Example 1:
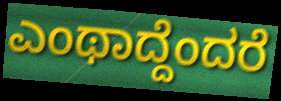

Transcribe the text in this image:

ಎಂಥಾದ್ದೆಂದರೆ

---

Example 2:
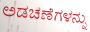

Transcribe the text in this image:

ಅಡಚಣೆಗಳನ್ನು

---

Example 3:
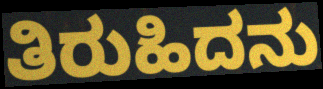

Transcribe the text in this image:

ತಿರುಹಿದನು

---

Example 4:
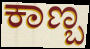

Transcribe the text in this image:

ಕಾಣ್ಬ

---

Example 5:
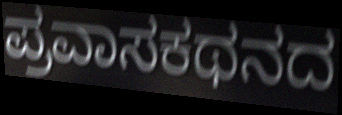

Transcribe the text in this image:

ಪ್ರವಾಸಕಥನದ